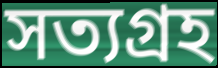
সত্যগ্ৰহ